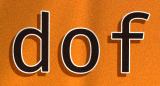
dof